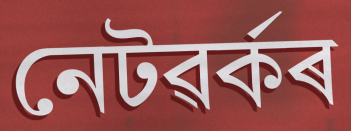
নেটৱৰ্কৰ